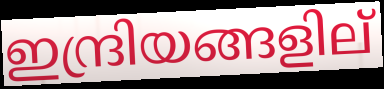
ഇന്ദ്രിയങ്ങളില്